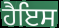
ਹੈਇਸ